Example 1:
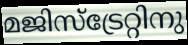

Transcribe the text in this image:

മജിസ്ട്രേറ്റിനു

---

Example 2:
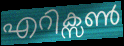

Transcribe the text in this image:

എറിക്സൺ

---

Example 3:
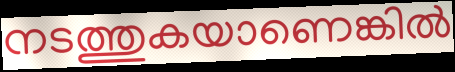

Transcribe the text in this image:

നടത്തുകയാണെങ്കിൽ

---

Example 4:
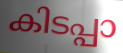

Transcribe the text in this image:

കിടപ്പാ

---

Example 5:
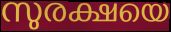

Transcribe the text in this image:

സുരക്ഷയെ